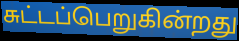
சுட்டப்பெறுகின்றது